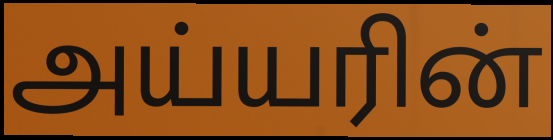
அய்யரின்